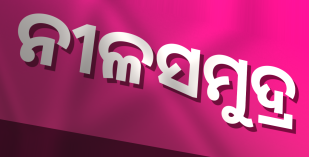
ନୀଳସମୁଦ୍ର